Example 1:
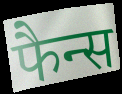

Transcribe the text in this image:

फैन्स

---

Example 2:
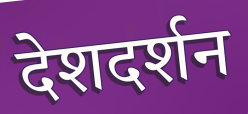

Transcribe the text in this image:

देशदर्शन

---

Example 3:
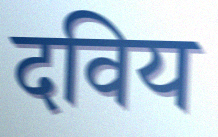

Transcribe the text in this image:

दविय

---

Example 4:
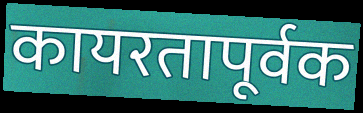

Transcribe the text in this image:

कायरतापूर्वक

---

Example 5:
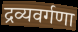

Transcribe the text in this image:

द्रव्यवर्गणा